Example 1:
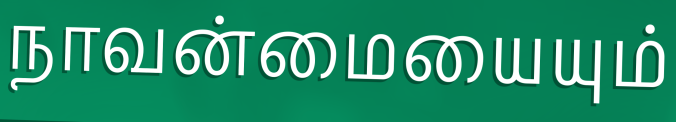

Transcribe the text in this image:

நாவன்மையையும்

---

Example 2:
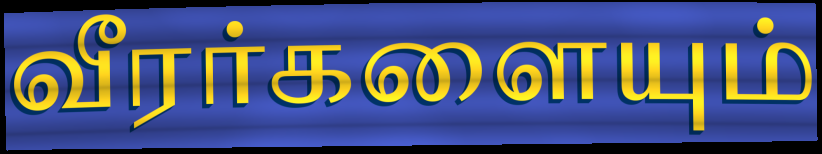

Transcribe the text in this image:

வீரர்களையும்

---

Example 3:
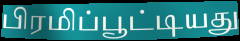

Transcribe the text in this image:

பிரமிப்பூட்டியது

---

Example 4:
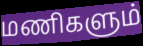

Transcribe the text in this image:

மணிகளும்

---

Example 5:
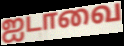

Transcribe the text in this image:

ஐடாவை